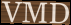
VMD